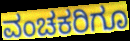
ವಂಚಕರಿಗೂ